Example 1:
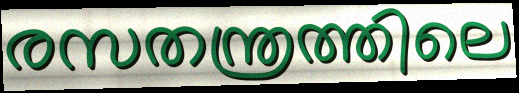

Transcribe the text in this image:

രസതന്ത്രത്തിലെ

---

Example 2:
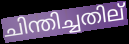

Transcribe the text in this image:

ചിന്തിച്ചതില്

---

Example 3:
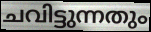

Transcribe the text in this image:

ചവിട്ടുന്നതും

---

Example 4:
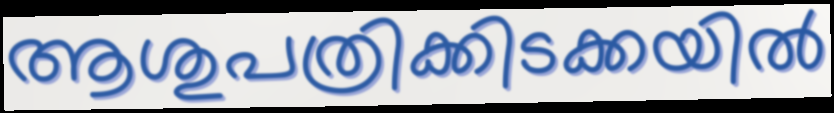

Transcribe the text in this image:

ആശുപത്രിക്കിടക്കയിൽ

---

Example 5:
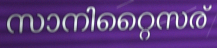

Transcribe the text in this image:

സാനിറ്റൈസര്